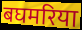
बघमरिया